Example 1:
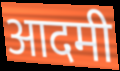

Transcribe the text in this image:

आदमी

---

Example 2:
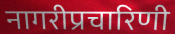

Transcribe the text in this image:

नागरीप्रचारिणी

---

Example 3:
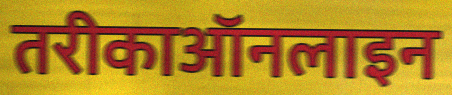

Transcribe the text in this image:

तरीकाऑनलाइन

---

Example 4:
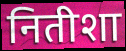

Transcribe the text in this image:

नितीशा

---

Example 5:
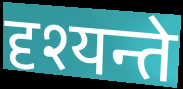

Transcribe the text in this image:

दृश्यन्ते